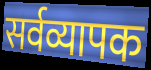
सर्वव्यापक